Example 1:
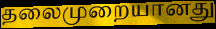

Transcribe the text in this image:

தலைமுறையானது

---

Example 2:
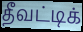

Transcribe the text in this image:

தீவட்டிக்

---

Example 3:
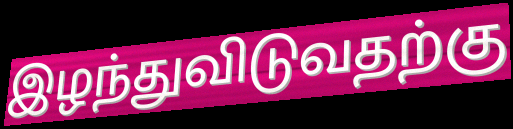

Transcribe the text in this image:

இழந்துவிடுவதற்கு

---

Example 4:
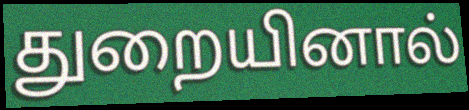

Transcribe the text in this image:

துறையினால்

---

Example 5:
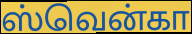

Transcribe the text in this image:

ஸ்வென்கா